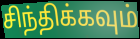
சிந்திக்கவும்